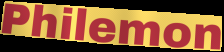
Philemon